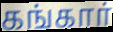
கங்கார்